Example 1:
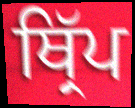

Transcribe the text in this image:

ਥ੍ਰਿੱਪ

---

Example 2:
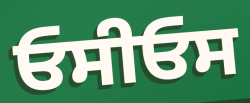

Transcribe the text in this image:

ਓਸੀਓਸ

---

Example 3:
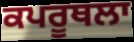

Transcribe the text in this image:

ਕਪਰੂਥਲਾ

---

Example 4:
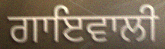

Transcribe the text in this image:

ਗਾਇਵਾਲੀ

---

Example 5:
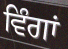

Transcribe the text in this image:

ਵਿੰਗਾਂ